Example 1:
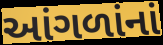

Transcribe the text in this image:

આંગળાંનાં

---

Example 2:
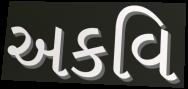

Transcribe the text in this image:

અકવિ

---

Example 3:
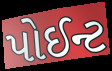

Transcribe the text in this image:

પોઈન્ટ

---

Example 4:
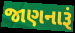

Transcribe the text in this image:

જાણનારૂં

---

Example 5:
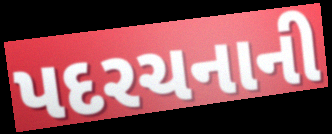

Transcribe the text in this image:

પદરચનાની